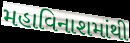
મહાવિનાશમાંથી